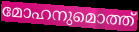
മോഹനുമൊത്ത്